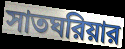
সাতঘরিয়ার